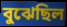
বুঝেছিল